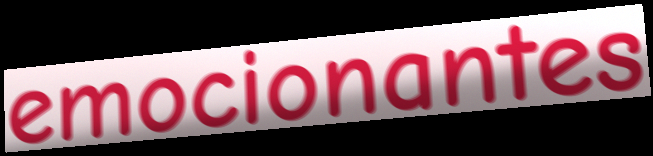
emocionantes